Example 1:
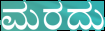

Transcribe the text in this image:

ಮರದು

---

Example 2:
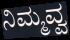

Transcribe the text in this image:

ನಿಮ್ಮವ್ವ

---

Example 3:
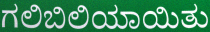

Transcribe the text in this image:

ಗಲಿಬಿಲಿಯಾಯಿತು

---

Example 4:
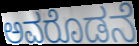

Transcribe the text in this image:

ಅವರೊಡನೆ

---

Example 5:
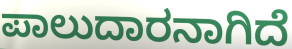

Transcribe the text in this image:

ಪಾಲುದಾರನಾಗಿದೆ